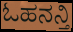
ಓಹನನ್ತಿ